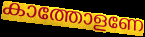
കാത്തോളണേ